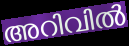
അറിവിൽ